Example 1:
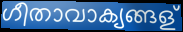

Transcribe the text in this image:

ഗീതാവാക്യങ്ങള്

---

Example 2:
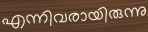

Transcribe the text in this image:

എന്നിവരായിരുന്നു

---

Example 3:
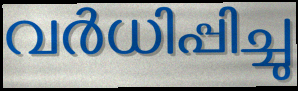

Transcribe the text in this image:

വർധിപ്പിച്ചു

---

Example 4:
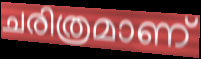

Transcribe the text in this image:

ചരിത്രമാണ്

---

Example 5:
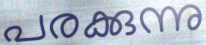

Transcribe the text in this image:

പരക്കുന്നു